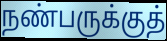
நண்பருக்குத்